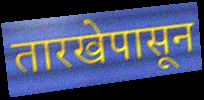
तारखेपासून